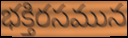
భక్తిరసమున